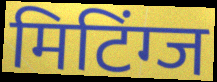
मिटिंग्ज